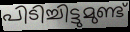
പിടിച്ചിട്ടുമുണ്ട്